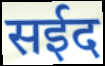
सईद